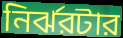
নির্ঝরটার